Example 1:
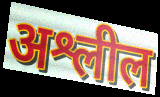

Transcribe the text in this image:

अश्लील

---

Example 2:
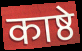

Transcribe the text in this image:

काष्ठे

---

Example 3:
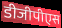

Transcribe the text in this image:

डीजीपीएस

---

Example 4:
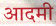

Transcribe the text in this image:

आदमी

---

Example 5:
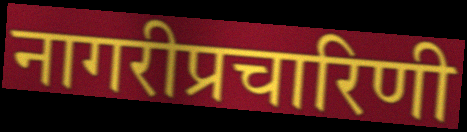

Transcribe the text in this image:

नागरीप्रचारिणी